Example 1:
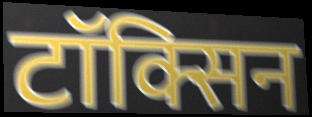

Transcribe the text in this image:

टॉक्सिन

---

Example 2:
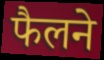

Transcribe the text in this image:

फैलने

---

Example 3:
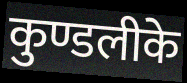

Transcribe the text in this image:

कुण्डलीके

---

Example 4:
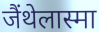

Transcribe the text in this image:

जैंथेलास्मा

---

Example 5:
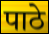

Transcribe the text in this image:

पाठे